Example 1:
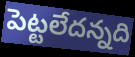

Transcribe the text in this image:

పెట్టలేదన్నది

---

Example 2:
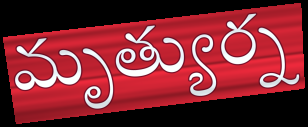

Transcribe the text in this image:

మృత్యుర్న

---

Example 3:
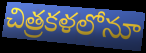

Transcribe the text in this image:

చిత్రకళలోనూ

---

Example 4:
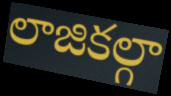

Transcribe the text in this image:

లాజికల్గా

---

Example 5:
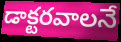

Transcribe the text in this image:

డాక్టరవాలనే